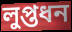
লুপ্তধন